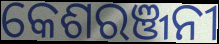
କେଶରଞ୍ଜନୀ